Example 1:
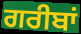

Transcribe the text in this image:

ਗਰੀਬਾਂ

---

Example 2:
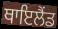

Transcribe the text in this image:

ਥਾਇਲੈਂਡ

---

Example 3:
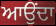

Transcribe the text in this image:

ਆਉਂਦਾ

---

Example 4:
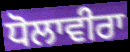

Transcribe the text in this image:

ਧੋਲਾਵੀਰਾ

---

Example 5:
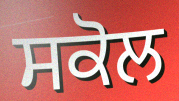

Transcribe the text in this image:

ਸਕੋਲ